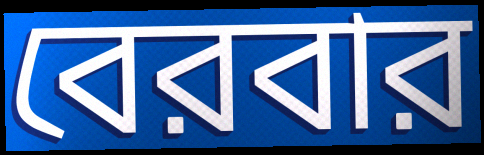
বেরবার